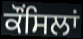
ਕੌਂਸਿਲਾਂ